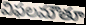
విఫలమౌతూ